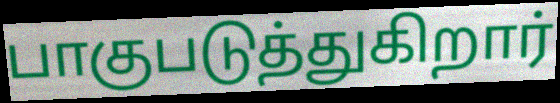
பாகுபடுத்துகிறார்